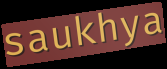
saukhya